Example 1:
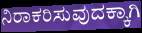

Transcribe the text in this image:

ನಿರಾಕರಿಸುವುದಕ್ಕಾಗಿ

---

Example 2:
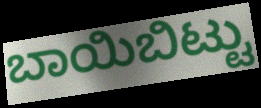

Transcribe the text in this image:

ಬಾಯಿಬಿಟ್ಟು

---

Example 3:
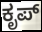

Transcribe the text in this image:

ಕೃಪ್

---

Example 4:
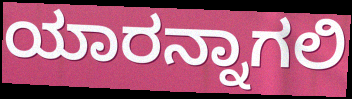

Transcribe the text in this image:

ಯಾರನ್ನಾಗಲಿ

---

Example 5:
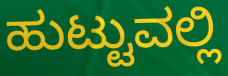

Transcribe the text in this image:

ಹುಟ್ಟುವಲ್ಲಿ